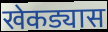
खेकड्यास